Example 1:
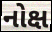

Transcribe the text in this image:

નોક્ષ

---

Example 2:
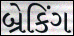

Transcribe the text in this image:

બ્રેકિંગ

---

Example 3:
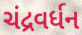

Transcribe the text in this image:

ચંદ્રવર્ધન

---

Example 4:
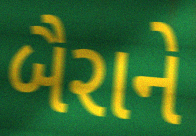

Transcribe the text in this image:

બૈરાને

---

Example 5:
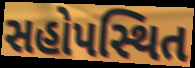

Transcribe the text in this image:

સહોપસ્થિત